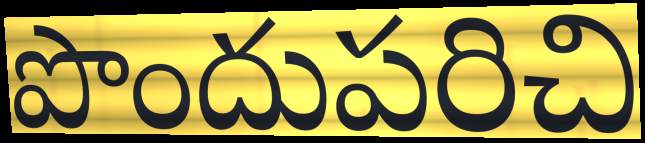
పొందుపరిచి